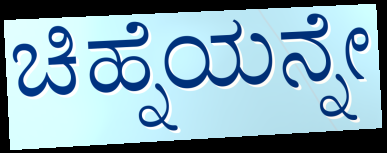
ಚಿಹ್ನೆಯನ್ನೇ